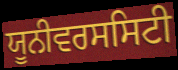
ਯੂਨੀਵਰਸਸਿਟੀ